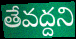
తేవద్దని